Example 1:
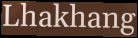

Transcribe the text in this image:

Lhakhang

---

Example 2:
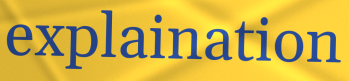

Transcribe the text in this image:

explaination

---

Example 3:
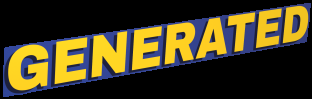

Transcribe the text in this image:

GENERATED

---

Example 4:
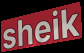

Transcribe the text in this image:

sheik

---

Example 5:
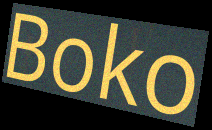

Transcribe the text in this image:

Boko